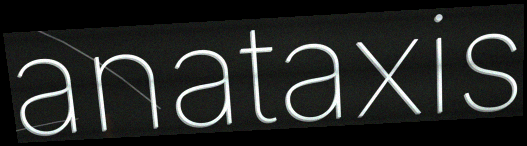
anataxis